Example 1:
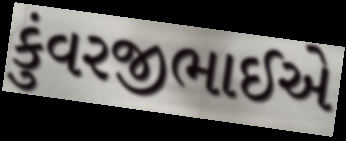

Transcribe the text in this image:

કુંવરજીભાઈએ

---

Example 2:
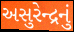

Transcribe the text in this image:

અસુરેન્દ્રનું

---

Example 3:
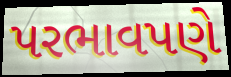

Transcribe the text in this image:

પરભાવપણે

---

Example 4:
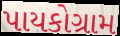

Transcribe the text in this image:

પાયકોગ્રામ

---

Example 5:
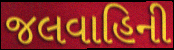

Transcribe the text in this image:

જલવાહિની